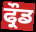
ਫ੍ਰੌਡ